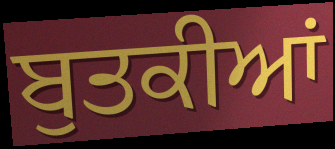
ਬੁਤਕੀਆਂ